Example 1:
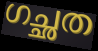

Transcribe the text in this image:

ഗച്ഛത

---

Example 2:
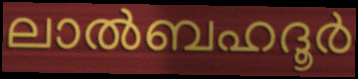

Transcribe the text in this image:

ലാൽബഹദൂർ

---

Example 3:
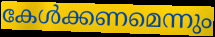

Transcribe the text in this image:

കേൾക്കണമെന്നും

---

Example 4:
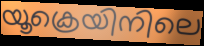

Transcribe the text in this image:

യൂക്രെയിനിലെ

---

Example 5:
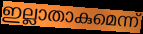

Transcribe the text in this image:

ഇല്ലാതാകുമെന്ന്